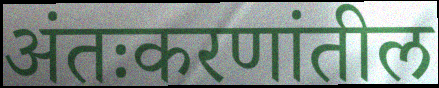
अंतःकरणांतील